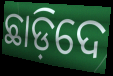
ଛାଡ଼ିଦେ